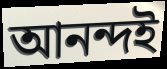
আনন্দই